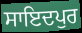
ਸਾਇਦਪੁਰ